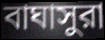
বাঘাসুরা